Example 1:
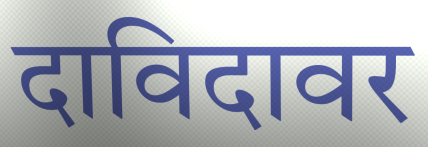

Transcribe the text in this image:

दाविदावर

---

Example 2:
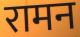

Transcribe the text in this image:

रामन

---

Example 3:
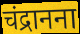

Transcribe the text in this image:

चंद्रानना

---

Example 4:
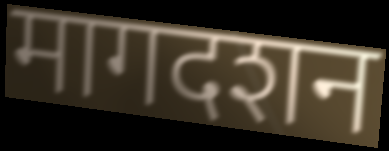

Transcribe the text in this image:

मागदशन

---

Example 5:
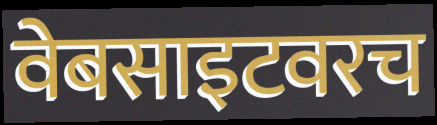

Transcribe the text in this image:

वेबसाइटवरच